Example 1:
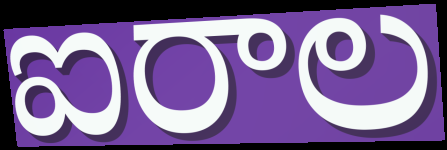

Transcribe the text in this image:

ఐరాల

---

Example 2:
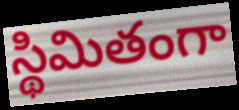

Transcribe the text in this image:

స్థిమితంగా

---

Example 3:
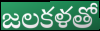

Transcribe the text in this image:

జలకళతో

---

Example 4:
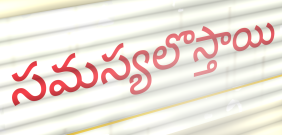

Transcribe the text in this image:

సమస్యలొస్తాయి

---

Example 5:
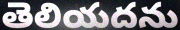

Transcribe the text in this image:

తెలియదను